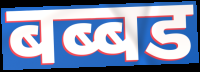
बब्बड